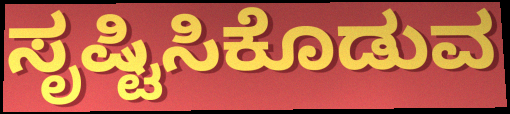
ಸೃಷ್ಟಿಸಿಕೊಡುವ